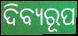
ଦିବ୍ୟରୂପ